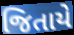
જિતાયે